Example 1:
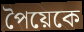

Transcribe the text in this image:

পৈয়েকে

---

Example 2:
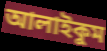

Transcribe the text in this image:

আলাইকুম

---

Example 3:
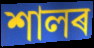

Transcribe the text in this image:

শালৰ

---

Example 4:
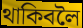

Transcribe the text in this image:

থাকিবলৈ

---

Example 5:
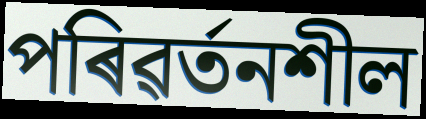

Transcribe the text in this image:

পৰিৱৰ্তনশীল